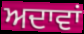
ਅਦਾਵਾਂ